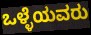
ಒಳ್ಳೆಯವರು